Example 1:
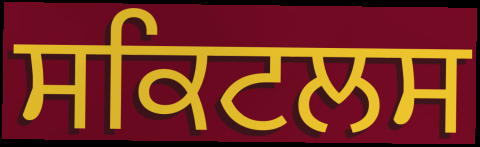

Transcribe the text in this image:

ਸਕਿਟਲਸ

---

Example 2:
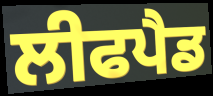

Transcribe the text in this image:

ਲੀਫਪੈਡ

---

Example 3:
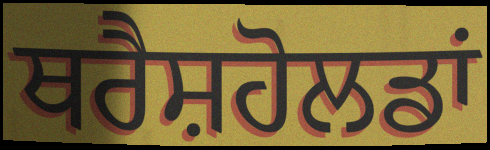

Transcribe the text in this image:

ਥਰੈਸ਼ਹੋਲਡਾਂ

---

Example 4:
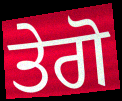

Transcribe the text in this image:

ਤੇਗੋ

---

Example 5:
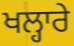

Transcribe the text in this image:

ਖਲ੍ਹਾਰੇ